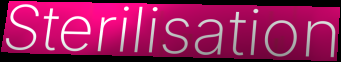
Sterilisation